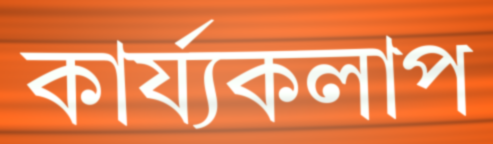
কাৰ্য্যকলাপ